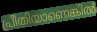
പ്രീതിയാണെങ്കിൽ